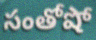
సంతోషో